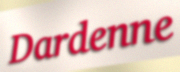
Dardenne